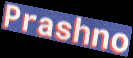
Prashno